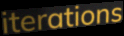
iterations